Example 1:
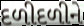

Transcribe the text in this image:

દળીદળીને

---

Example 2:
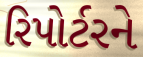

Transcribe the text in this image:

રિપોર્ટરને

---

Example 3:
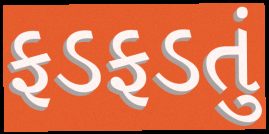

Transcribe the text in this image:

ફડફડતું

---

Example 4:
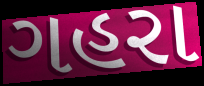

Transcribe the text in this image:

ગહરા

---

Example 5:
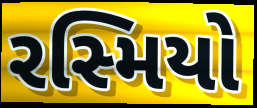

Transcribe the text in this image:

રસ્મિયો